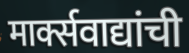
मार्क्सवाद्यांची